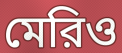
মেরিও